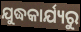
ଯୁଦ୍ଧକାର୍ଯ୍ୟରୁ